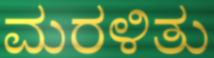
ಮರಳಿತು